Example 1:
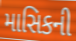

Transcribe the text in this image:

માસિકની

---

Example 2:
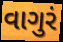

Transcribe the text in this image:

વાગુરં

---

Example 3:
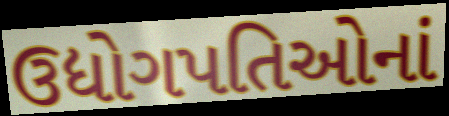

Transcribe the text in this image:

ઉદ્યોગપતિઓનાં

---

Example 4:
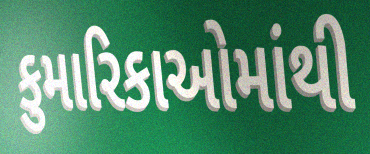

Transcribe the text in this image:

કુમારિકાઓમાંથી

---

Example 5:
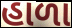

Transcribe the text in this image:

હાળા